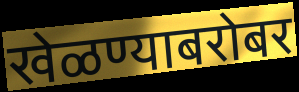
खेळण्याबरोबर